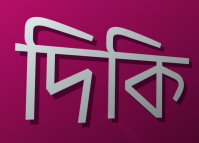
দিকি